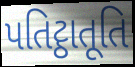
પતિટ્ઠાતૂતિ